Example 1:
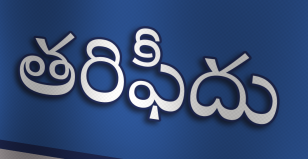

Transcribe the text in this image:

తరిఫీదు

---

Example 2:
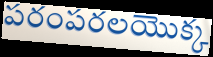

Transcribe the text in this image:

పరంపరలయొక్క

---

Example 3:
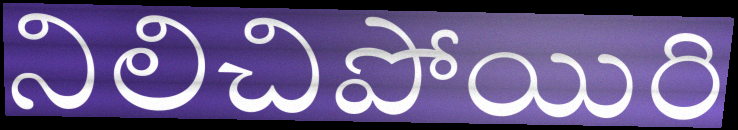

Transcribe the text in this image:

నిలిచిపోయిరి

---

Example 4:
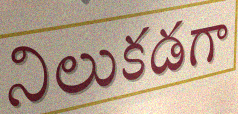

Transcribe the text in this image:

నిలుకడగా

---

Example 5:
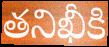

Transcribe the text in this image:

తనిఖీకి